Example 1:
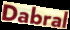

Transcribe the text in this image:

Dabral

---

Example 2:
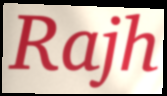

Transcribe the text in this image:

Rajh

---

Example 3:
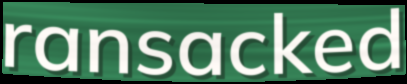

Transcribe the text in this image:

ransacked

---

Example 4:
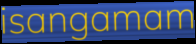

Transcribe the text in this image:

isangamam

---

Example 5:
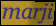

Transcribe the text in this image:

marji